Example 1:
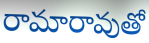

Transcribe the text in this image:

రామారావుతో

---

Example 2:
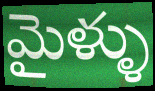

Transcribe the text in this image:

మైళ్ళు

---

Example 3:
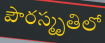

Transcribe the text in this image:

పౌరస్మృతిలో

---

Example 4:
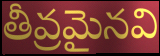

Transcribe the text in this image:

తీవ్రమైనవి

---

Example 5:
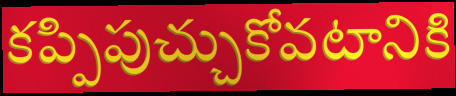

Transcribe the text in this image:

కప్పిపుచ్చుకోవటానికి